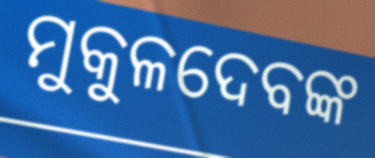
ମୁକୁଳଦେବଙ୍କ